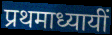
प्रथमाध्यायीं